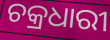
ଚକ୍ରଧାରୀ